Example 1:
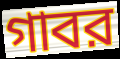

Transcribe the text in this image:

গাবর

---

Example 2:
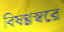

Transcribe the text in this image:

বিষণ্ণস্বরে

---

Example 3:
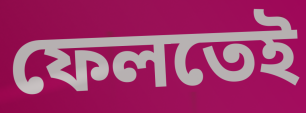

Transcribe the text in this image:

ফেলতেই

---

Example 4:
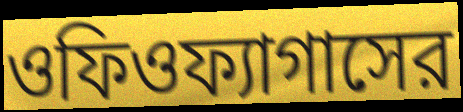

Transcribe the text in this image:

ওফিওফ্যাগাসের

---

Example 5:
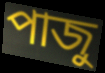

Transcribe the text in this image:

পাজু